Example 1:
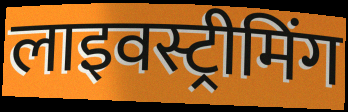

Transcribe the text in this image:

लाइवस्ट्रीमिंग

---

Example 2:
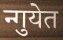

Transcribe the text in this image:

न्गुयेत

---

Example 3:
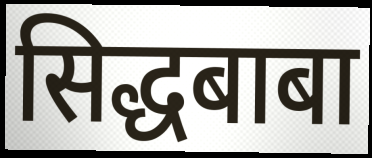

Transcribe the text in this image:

सिद्धबाबा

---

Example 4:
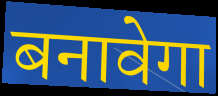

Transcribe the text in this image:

बनावेगा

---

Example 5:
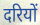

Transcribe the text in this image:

दरियों